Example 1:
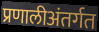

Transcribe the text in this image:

प्रणालीअंतर्गत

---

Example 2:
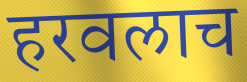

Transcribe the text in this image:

हरवलाच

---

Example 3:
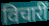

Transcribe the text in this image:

विचारीं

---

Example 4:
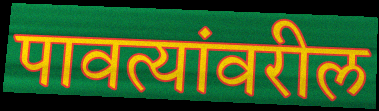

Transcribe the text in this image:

पावत्यांवरील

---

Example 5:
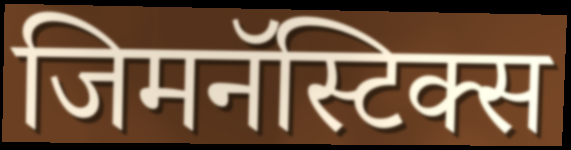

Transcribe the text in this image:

जिमनॅस्टिक्स